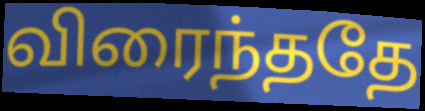
விரைந்ததே